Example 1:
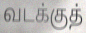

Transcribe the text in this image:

வடக்குத்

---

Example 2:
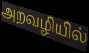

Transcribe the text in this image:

அறவழியில்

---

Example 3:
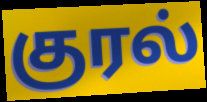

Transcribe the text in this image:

குரல்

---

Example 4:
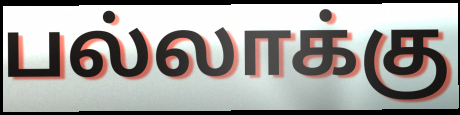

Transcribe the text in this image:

பல்லாக்கு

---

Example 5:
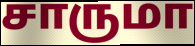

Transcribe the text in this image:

சாருமா